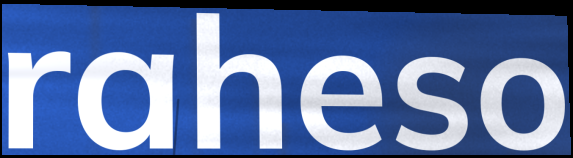
raheso